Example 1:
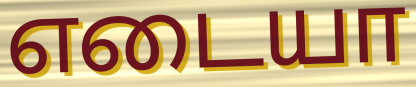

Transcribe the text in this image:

எடையா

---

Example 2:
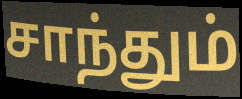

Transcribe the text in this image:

சாந்தும்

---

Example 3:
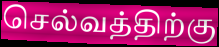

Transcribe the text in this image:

செல்வத்திற்கு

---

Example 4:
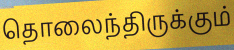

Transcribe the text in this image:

தொலைந்திருக்கும்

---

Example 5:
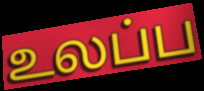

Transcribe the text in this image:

உலப்ப